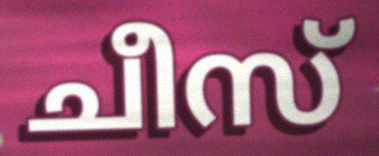
ചീസ്